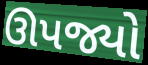
ઊપજ્યો